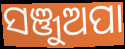
ସଞ୍ଜୁଅପା